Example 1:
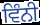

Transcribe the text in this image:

ਵਿੰਨੀ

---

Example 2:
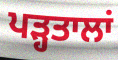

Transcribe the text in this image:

ਪੜ੍ਹਤਾਲਾਂ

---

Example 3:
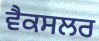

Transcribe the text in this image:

ਵੈਕਸਲਰ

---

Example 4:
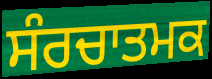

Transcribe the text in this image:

ਸੰਰਚਾਤਮਕ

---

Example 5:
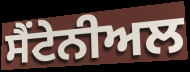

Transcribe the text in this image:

ਸੈਂਟੇਨੀਅਲ